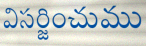
విసర్జించుము